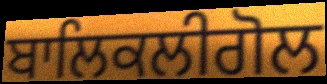
ਬਾਲਿਕਲੀਗੋਲ